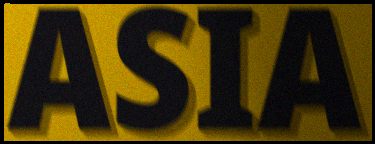
ASIA